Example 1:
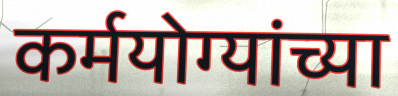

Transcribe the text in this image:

कर्मयोग्यांच्या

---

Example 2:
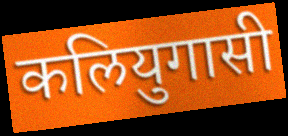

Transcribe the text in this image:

कलियुगासी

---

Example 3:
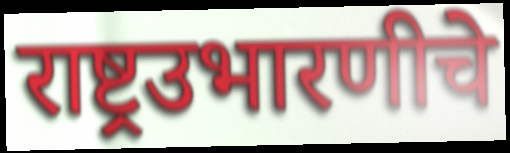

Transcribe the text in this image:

राष्ट्रउभारणीचे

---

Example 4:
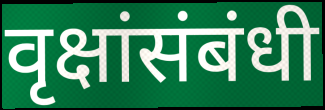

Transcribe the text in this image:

वृक्षांसंबंधी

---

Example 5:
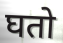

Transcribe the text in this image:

घतो